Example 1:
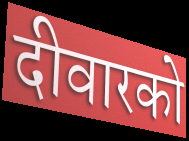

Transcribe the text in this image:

दीवारको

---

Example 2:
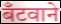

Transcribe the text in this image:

बँटवाने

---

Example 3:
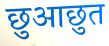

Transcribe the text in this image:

छुआछुत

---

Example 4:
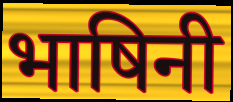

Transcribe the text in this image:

भाषिनी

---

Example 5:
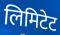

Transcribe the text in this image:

लिमिटेट